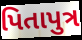
પિતાપુત્ર